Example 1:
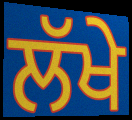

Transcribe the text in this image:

ਲੱਖੇ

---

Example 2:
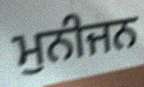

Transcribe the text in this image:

ਮੁਨੀਜਨ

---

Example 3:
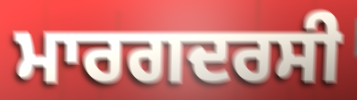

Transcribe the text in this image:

ਮਾਰਗਦਰਸੀ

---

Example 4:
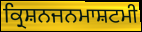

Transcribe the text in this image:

ਕ੍ਰਿਸ਼ਨਜਨਮਾਸ਼ਟਮੀ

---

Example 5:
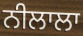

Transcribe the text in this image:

ਨੀਲਾਲਾ